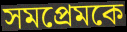
সমপ্রেমকে